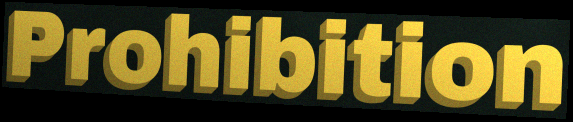
Prohibition